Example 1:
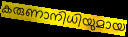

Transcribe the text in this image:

കരുണാനിധിയുമായ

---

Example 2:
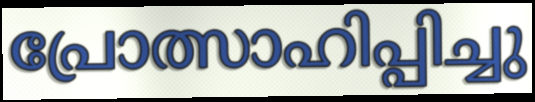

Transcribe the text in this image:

പ്രോത്സാഹിപ്പിച്ചു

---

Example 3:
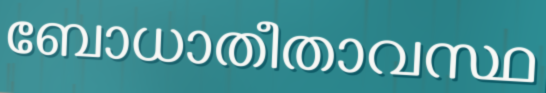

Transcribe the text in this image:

ബോധാതീതാവസ്ഥ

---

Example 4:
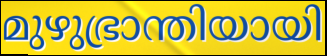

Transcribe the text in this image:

മുഴുഭ്രാന്തിയായി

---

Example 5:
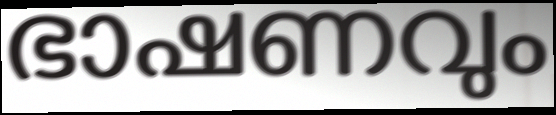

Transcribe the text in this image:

ഭാഷണവും